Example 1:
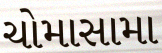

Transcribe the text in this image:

ચોમાસામા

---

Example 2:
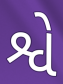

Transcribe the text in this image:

શ્વે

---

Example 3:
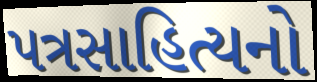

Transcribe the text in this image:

પત્રસાહિત્યનો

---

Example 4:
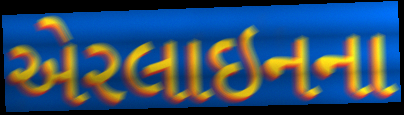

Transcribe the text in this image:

એરલાઇનના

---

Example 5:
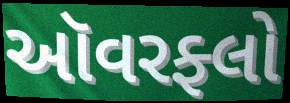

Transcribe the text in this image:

ઑવરફ્લો